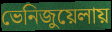
ভেনিজুয়েলায়